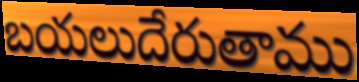
బయలుదేరుతాము